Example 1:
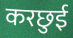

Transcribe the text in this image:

करछुई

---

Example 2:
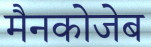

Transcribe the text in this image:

मैनकोजेब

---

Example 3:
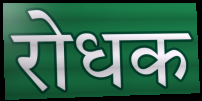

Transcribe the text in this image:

रोधक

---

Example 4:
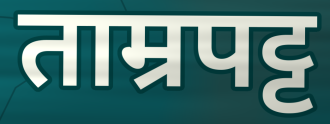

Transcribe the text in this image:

ताम्रपट्ट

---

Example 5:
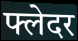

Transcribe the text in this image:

फ्लेदर